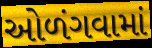
ઓળંગવામાં